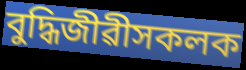
বুদ্ধিজীৱীসকলক